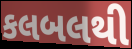
કલબલથી